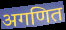
अगणित